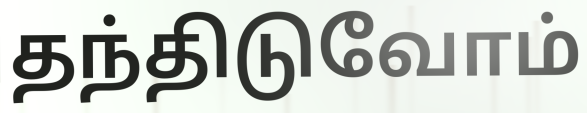
தந்திடுவோம்